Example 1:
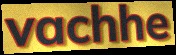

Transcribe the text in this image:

vachhe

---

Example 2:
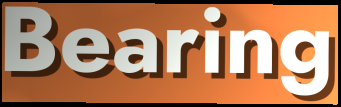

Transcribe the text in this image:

Bearing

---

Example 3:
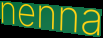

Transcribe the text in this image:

nenna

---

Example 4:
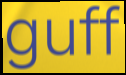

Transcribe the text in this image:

guff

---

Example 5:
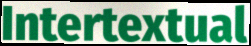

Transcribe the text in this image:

Intertextual